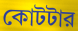
কোটটার